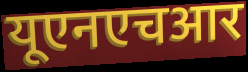
यूएनएचआर